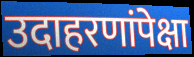
उदाहरणांपेक्षा